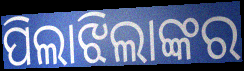
ପିଲାଝିଲାଙ୍କର